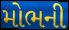
મોભની